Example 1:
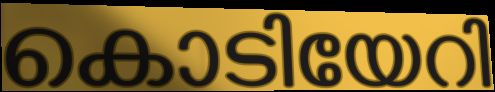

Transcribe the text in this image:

കൊടിയേറി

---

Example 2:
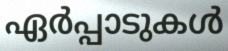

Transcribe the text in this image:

ഏർപ്പാടുകൾ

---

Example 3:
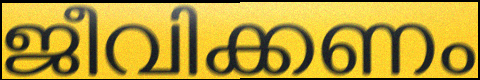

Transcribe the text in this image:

ജീവിക്കണം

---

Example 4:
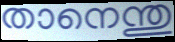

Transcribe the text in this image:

താനെന്തു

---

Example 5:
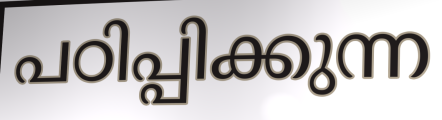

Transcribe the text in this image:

പഠിപ്പിക്കുന്ന